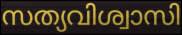
സത്യവിശ്വാസി